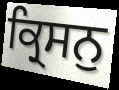
ਕ੍ਰਿਸਨੁ